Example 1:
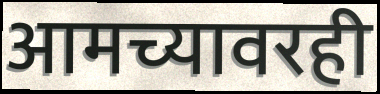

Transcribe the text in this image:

आमच्यावरही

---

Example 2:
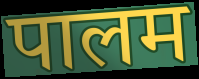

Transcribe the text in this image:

पालम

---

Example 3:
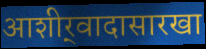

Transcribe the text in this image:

आशीर्वादासारखा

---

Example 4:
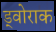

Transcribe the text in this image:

ड्वोराक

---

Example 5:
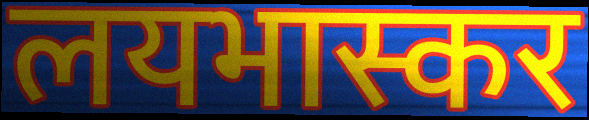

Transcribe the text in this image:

लयभास्कर